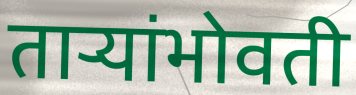
ताऱ्यांभोवती